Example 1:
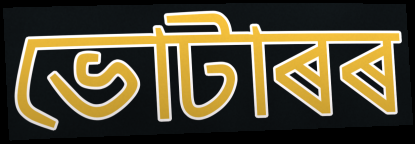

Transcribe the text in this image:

ভোটাৰৰ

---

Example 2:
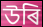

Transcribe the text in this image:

উৰি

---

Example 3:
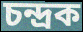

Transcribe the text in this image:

চন্দ্ৰক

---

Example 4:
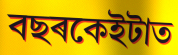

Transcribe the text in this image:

বছৰকেইটাত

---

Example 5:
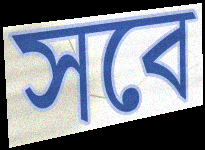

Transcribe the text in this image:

সবে